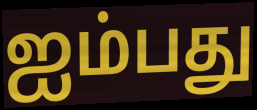
ஐம்பது